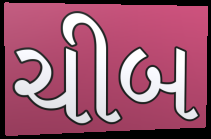
ચીબ